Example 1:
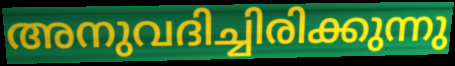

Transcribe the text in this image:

അനുവദിച്ചിരിക്കുന്നു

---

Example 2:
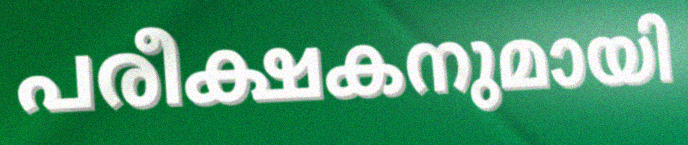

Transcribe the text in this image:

പരീക്ഷകനുമായി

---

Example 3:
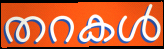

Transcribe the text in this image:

തറകൾ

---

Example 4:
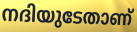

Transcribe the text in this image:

നദിയുടേതാണ്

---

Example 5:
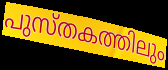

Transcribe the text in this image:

പുസ്തകത്തിലും